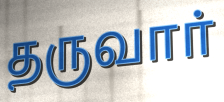
தருவார்